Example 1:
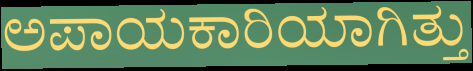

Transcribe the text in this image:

ಅಪಾಯಕಾರಿಯಾಗಿತ್ತು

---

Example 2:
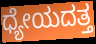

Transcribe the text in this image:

ಧ್ಯೇಯದತ್ತ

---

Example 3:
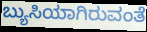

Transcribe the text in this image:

ಬ್ಯುಸಿಯಾಗಿರುವಂತೆ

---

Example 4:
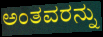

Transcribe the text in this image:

ಅಂತವರನ್ನು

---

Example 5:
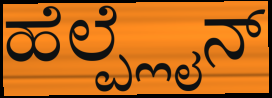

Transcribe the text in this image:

ಹೆಲ್ಪ್ಲೈನ್